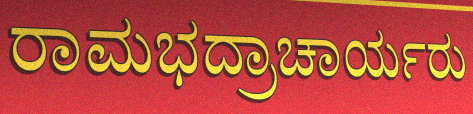
ರಾಮಭದ್ರಾಚಾರ್ಯರು